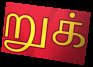
றுக்